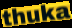
thuka